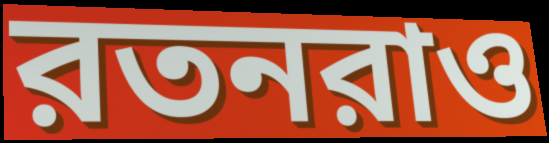
রতনরাও